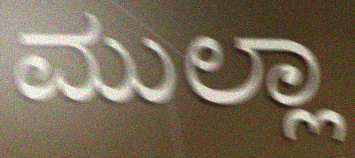
ಮುಲ್ಲಾ